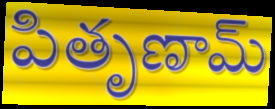
పితృణామ్